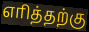
எரித்தற்கு